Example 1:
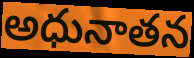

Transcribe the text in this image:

అధునాతన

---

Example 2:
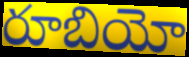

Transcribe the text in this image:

రూబియో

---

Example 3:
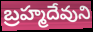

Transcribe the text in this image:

బ్రహ్మదేవుని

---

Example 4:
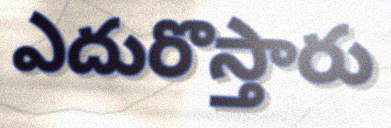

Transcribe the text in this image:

ఎదురొస్తారు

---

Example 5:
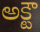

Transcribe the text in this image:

అక్టౌ